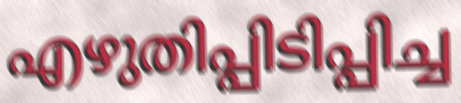
എഴുതിപ്പിടിപ്പിച്ച